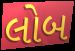
લોબ